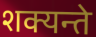
शक्यन्ते